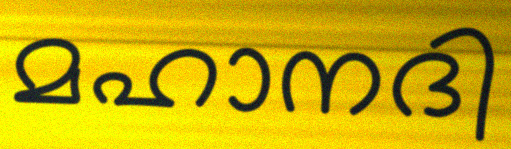
മഹാനദി